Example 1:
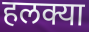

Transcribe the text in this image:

हलक्या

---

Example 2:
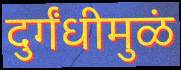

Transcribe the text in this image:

दुर्गंधीमुळं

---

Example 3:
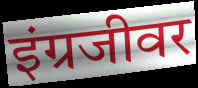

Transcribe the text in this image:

इंग्रजीवर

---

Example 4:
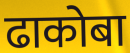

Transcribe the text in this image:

ढाकोबा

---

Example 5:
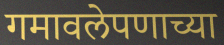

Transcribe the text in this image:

गमावलेपणाच्या